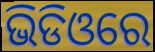
ଭିଡିଓରେ